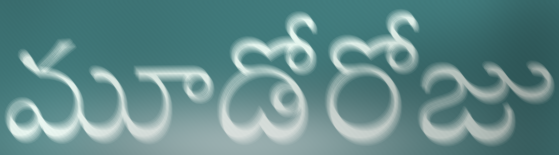
మూడోరోజు